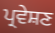
ਪ੍ਰਵੇਸ਼ਣ